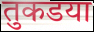
तुकडया